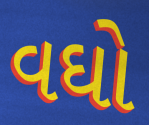
વઘો